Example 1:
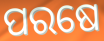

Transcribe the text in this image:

ପରଷେ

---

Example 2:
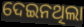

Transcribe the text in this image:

ଦେଇନଥିଲା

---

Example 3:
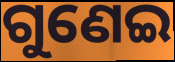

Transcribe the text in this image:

ଗୁଣେଇ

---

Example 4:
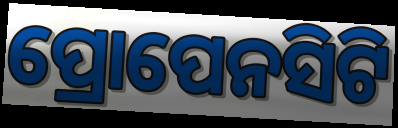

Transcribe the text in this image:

ପ୍ରୋପେନସିଟି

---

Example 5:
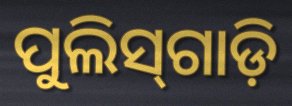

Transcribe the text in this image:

ପୁଲିସ୍‌ଗାଡ଼ି